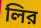
লির